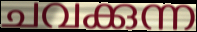
ചവക്കുന്ന